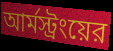
আর্মস্ট্রংয়ের